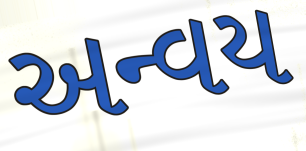
અન્વય